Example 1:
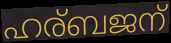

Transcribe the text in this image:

ഹര്ബജന്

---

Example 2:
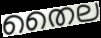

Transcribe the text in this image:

തൈല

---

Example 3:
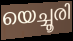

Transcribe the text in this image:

യെച്ചൂരി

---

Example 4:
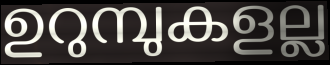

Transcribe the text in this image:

ഉറുമ്പുകളല്ല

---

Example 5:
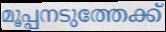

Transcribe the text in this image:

മൂപ്പനടുത്തേക്ക്